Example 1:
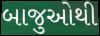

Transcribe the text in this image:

બાજુઓથી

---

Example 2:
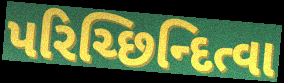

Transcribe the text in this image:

પરિચ્છિન્દિત્વા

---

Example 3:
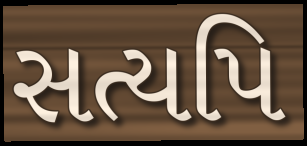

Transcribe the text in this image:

સત્યપિ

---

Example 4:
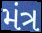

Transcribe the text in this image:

મંત્ર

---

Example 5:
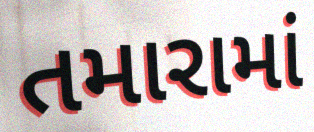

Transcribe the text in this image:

તમારામાં